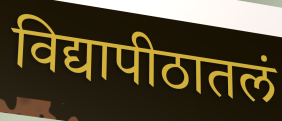
विद्यापीठातलं